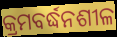
କ୍ରମବର୍ଦ୍ଧନଶୀଳ